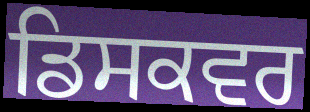
ਡਿਸਕਵਰ